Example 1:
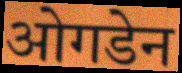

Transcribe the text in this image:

ओगडेन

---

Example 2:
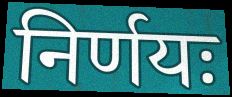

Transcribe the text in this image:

निर्णयः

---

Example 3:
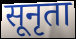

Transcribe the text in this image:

सूनृता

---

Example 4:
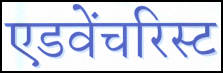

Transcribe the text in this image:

एडवेंचरिस्ट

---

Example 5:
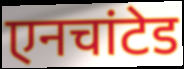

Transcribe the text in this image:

एनचांटेड